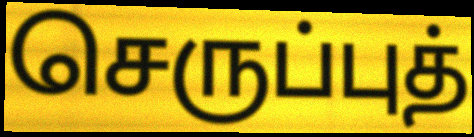
செருப்புத்